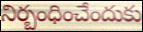
నిర్బంధించేందుకు